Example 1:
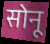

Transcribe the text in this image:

सोनू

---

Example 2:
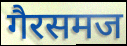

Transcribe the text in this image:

गैरसमज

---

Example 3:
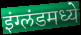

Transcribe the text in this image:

इंग्लंडमध्ये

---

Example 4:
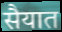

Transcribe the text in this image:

सैयात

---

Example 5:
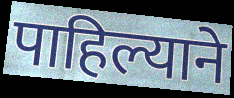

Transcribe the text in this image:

पाहिल्याने